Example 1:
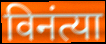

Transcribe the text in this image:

विनंत्या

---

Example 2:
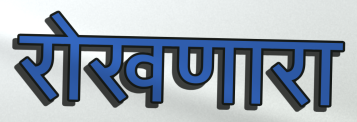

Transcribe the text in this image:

रोखणारा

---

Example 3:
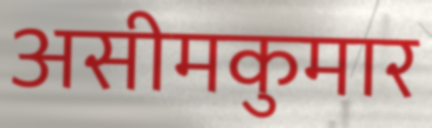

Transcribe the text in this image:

असीमकुमार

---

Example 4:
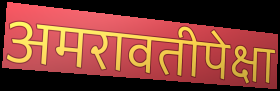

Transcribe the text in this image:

अमरावतीपेक्षा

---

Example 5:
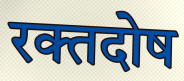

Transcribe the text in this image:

रक्‍तदोष